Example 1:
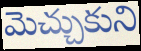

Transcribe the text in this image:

మెచ్చుకుని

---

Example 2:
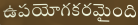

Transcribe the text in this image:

ఉపయోగకరమైంది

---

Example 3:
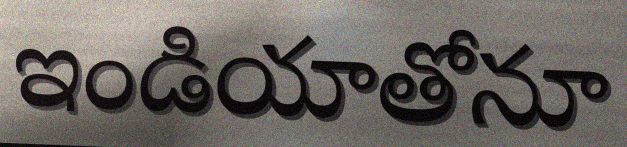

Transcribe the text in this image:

ఇండియాతోనూ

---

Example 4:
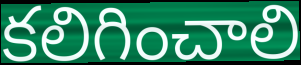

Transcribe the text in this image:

కలిగించాలి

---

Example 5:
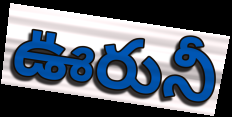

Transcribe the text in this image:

ఊరునీ